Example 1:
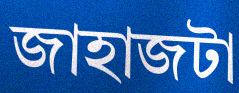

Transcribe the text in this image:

জাহাজটা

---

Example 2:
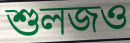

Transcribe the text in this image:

শুলজও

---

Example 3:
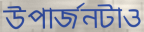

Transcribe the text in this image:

উপার্জনটাও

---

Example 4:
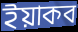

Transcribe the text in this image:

ইয়াকব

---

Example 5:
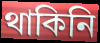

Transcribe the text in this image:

থাকিনি